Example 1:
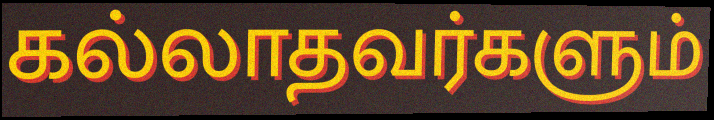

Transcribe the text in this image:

கல்லாதவர்களும்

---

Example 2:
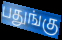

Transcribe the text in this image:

பதுங்கு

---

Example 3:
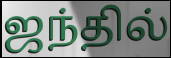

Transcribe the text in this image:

ஜந்தில்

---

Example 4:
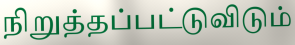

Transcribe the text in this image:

நிறுத்தப்பட்டுவிடும்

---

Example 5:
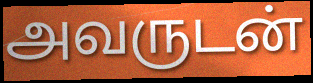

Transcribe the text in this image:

அவருடன்